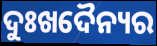
ଦୁଃଖଦୈନ୍ୟର